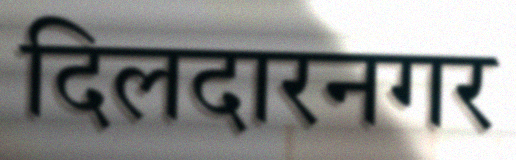
दिलदारनगर